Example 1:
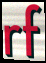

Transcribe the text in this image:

rf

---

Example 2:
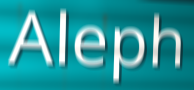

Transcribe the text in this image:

Aleph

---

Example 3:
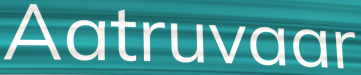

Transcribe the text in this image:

Aatruvaar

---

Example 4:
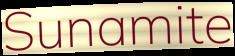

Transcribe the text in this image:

Sunamite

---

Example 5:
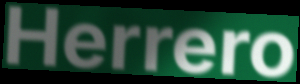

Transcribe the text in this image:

Herrero